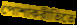
পোশাকরীতিতে